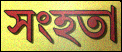
সংহতা